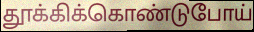
தூக்கிக்கொண்டுபோய்